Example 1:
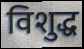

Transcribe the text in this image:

विशुद्ध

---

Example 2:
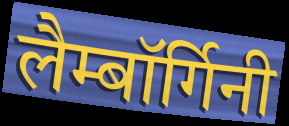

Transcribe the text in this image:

लैम्बॉर्गिनी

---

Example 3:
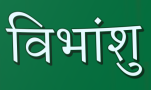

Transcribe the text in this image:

विभांशु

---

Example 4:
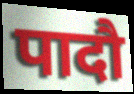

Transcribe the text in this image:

पादौ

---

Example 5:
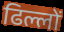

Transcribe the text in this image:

ढिल्लों